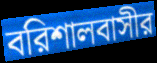
বরিশালবাসীর